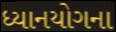
ધ્યાનયોગના